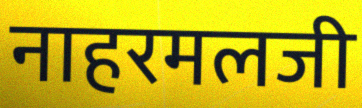
नाहरमलजी